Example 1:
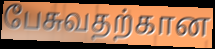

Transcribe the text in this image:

பேசுவதற்கான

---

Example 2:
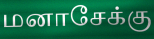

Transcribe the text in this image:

மனாசேக்கு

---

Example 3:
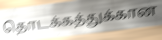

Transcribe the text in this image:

தொடக்கத்துக்கான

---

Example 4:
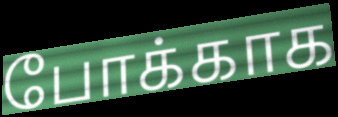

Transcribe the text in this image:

போக்காக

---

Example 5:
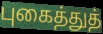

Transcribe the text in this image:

புகைத்துத்